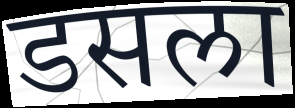
डसला